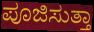
ಪೂಜಿಸುತ್ತಾ